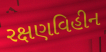
રક્ષણવિહીન